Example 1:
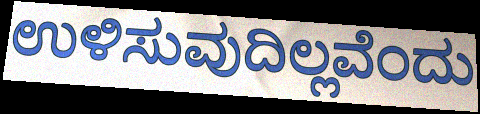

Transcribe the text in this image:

ಉಳಿಸುವುದಿಲ್ಲವೆಂದು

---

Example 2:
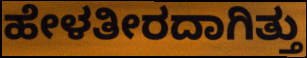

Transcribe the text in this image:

ಹೇಳತೀರದಾಗಿತ್ತು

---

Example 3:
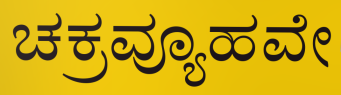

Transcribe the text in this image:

ಚಕ್ರವ್ಯೂಹವೇ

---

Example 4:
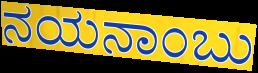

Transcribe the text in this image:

ನಯನಾಂಬು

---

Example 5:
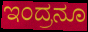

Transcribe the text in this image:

ಇಂದ್ರನೂ